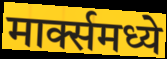
मार्क्समध्ये